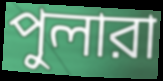
পুলারা